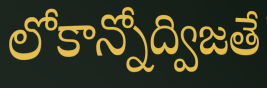
లోకాన్నోద్విజతే